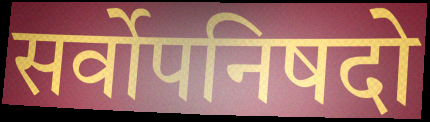
सर्वोपनिषदो